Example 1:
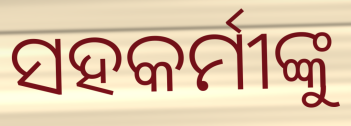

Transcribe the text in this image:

ସହକର୍ମୀଙ୍କୁ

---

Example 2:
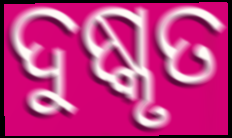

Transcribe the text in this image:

ଦୁଷ୍କୃତ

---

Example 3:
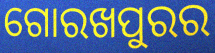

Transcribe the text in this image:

ଗୋରଖପୁରର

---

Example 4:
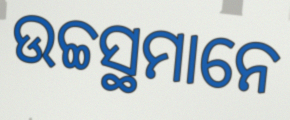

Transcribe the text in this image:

ଉଚ୍ଚସ୍ଥମାନେ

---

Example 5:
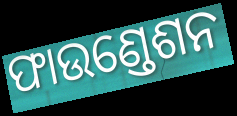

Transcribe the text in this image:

ଫାଉଣ୍ଡେଶନ